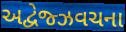
અદ્વેજ્ઝવચના